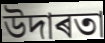
উদাৰতা